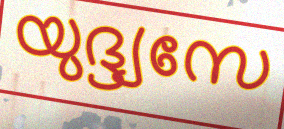
യുദ്ദ്യസേ